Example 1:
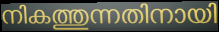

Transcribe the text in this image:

നികത്തുന്നതിനായി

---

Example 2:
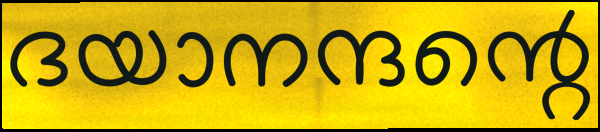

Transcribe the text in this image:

ദയാനന്ദന്റെ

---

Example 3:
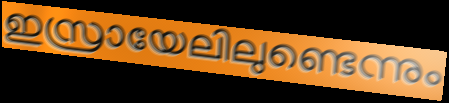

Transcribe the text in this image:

ഇസ്രായേലിലുണ്ടെന്നും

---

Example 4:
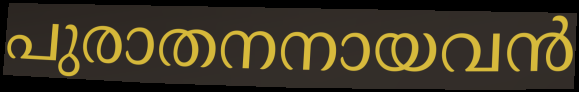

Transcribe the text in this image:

പുരാതനനായവൻ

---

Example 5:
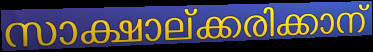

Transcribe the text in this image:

സാക്ഷാല്ക്കരിക്കാന്